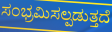
ಸಂಭ್ರಮಿಸಲ್ಪಡುತ್ತದೆ